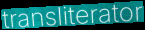
transliterator